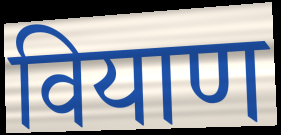
वियाण